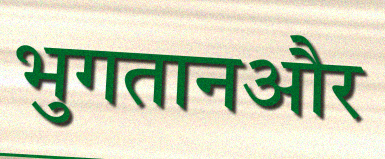
भुगतानऔर